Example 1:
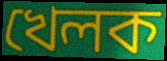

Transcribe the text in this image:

খেলক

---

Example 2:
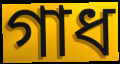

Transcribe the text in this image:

গাধ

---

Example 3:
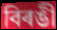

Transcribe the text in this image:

বিৰঙী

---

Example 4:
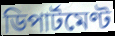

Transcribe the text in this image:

ডিপাৰ্টমেণ্ট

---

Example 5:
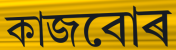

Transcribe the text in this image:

কাজবোৰ